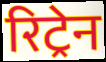
रिट्रेन